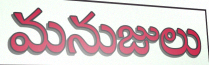
మనుజులు